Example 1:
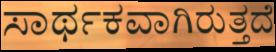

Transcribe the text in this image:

ಸಾರ್ಥಕವಾಗಿರುತ್ತದೆ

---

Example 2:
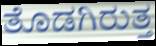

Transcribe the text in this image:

ತೊಡಗಿರುತ್ತ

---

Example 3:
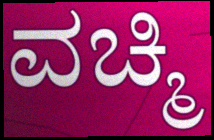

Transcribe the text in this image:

ವಚ್ಮಿ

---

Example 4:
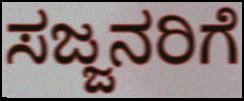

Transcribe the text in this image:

ಸಜ್ಜನರಿಗೆ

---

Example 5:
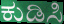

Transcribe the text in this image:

ಕುಡಿಸಿ